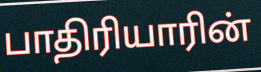
பாதிரியாரின்